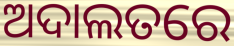
ଅଦାଲତରେ